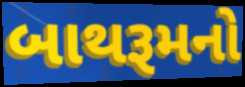
બાથરૂમનો